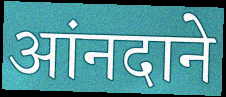
आंनदाने